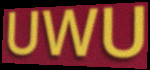
UWU